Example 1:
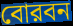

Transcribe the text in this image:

বোরবন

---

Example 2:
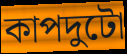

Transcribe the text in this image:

কাপদুটো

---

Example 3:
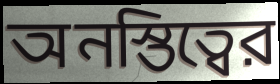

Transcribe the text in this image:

অনস্তিত্বের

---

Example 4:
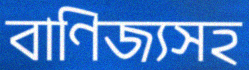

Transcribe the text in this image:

বাণিজ্যসহ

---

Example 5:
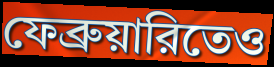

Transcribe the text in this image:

ফেব্রুয়ারিতেও